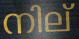
നില്